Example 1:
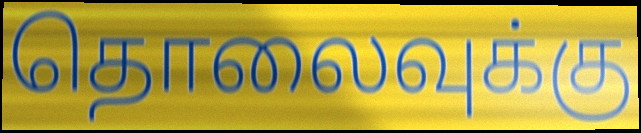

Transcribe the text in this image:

தொலைவுக்கு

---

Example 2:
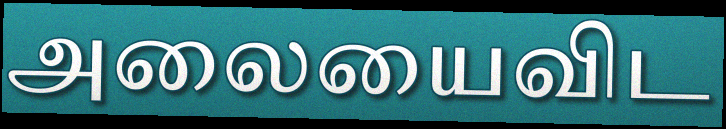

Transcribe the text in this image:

அலையைவிட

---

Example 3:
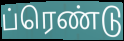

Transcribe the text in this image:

ப்ரெண்டு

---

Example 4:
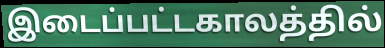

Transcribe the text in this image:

இடைப்பட்டகாலத்தில்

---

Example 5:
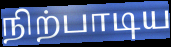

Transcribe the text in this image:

நிற்பாடிய